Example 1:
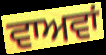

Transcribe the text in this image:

ਵਾਅਵਾਂ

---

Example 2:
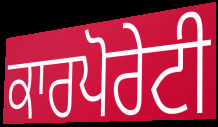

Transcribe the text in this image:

ਕਾਰਪੋਰੇਟੀ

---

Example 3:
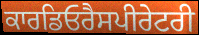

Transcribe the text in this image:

ਕਾਰਡਿਓਰੈਸਪੀਰੇਟਰੀ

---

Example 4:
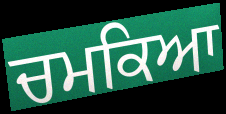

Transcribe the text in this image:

ਚਮਕਿਆ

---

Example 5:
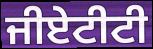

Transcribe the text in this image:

ਜੀਏਟੀਟੀ